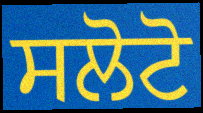
ਸਲੋਟੋ